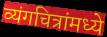
व्यंगचित्रांमध्ये